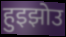
हुइझोउ